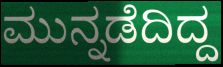
ಮುನ್ನಡೆದಿದ್ದ